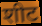
शीट